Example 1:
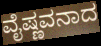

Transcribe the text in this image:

ವೈಷ್ಣವನಾದ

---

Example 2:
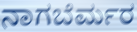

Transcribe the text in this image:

ನಾಗಬೆರ್ಮರ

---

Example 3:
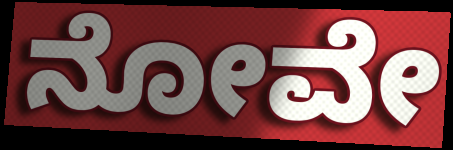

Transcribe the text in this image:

ನೋವೇ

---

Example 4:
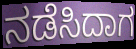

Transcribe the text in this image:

ನಡೆಸಿದಾಗ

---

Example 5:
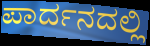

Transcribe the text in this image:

ಪಾರ್ದನದಲ್ಲಿ